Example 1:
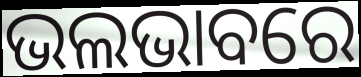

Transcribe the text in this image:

ଭଲଭାବରେ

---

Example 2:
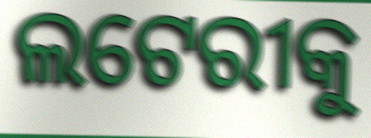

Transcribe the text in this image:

ଲଟେରୀକୁ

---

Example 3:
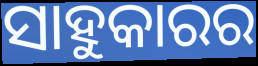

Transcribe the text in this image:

ସାହୁକାରର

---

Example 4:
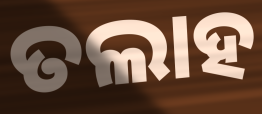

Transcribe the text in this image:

ତଲାହ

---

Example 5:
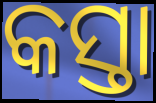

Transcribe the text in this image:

କସ୍ତା